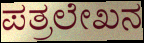
ಪತ್ರಲೇಖನ